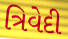
ત્રિવેદી